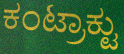
ಕಂಟ್ರಾಕ್ಟು